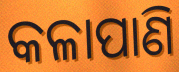
କଳାପାଣି